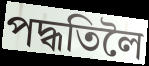
পদ্ধতিলৈ